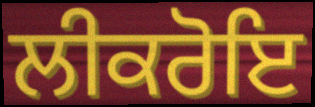
ਲੀਕਰੋਇ